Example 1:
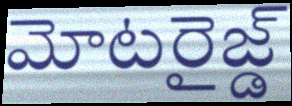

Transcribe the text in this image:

మోటరైజ్డ్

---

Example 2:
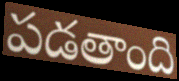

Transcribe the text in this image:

పడతాంది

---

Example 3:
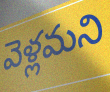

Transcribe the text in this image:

వెళ్లమని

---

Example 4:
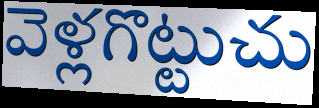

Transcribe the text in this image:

వెళ్లగొట్టుచు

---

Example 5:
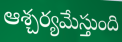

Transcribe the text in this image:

ఆశ్చర్యమేస్తుంది